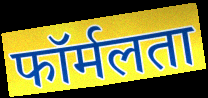
फॉर्मलता